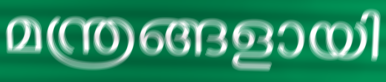
മന്ത്രങ്ങളായി